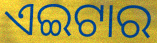
ଏଇଟାର